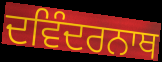
ਦਵਿੰਦਰਨਾਥ